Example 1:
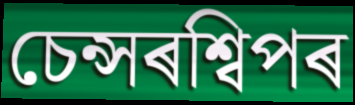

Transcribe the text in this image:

চেন্সৰশ্বিপৰ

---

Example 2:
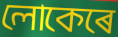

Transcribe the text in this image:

লোকেৰে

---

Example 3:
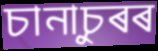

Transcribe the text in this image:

চানাচুৰৰ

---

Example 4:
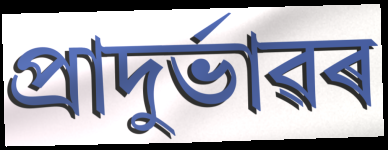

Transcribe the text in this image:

প্ৰাদুৰ্ভাৱৰ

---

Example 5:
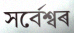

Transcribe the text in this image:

সৰ্বেশ্বৰ